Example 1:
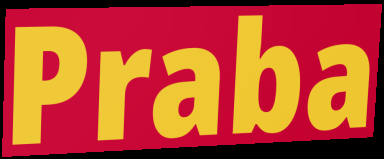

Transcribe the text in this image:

Praba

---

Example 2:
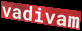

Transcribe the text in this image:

vadivam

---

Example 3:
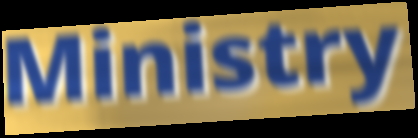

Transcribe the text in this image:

Ministry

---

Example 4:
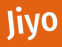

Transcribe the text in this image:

Jiyo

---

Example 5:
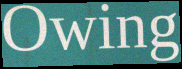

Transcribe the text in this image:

Owing